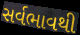
સર્વભાવથી